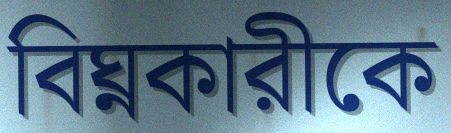
বিঘ্নকারীকে